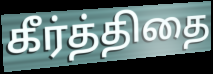
கீர்த்திதை